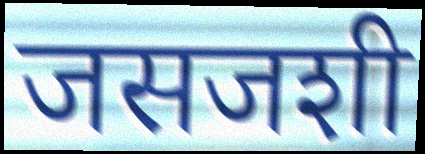
जसजशी